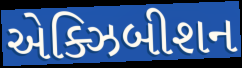
એક્ઝિબીશન